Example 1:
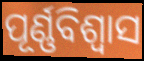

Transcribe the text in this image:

ପୂର୍ଣ୍ଣବିଶ୍ଵାସ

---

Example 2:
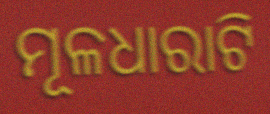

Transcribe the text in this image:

ମୂଳଧାରାଟି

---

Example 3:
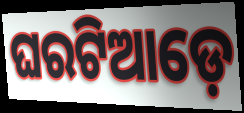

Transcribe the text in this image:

ଘରଟିଆଡ଼େ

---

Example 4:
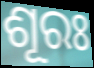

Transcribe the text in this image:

ଶୂରଃ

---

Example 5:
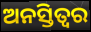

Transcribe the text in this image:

ଅନସ୍ତିତ୍ୱର